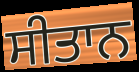
ਸੀਤਾਨ